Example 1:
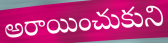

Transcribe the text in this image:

అరాయించుకుని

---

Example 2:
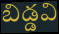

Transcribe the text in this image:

బిడ్డవి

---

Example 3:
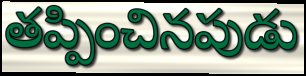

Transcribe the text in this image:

తప్పించినపుడు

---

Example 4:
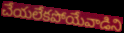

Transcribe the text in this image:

చేయలేకపోయేవాడిని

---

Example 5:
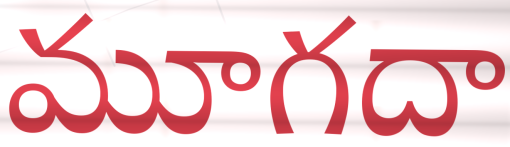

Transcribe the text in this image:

మూగదా